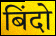
बिंदो